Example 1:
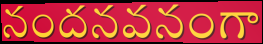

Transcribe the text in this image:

నందనవనంగా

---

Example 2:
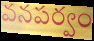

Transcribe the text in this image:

వనపర్వం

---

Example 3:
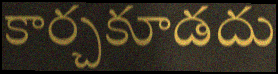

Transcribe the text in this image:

కార్చకూడదు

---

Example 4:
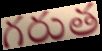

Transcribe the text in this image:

గరుత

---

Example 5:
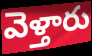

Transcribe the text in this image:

వెళ్తారు